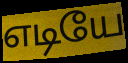
எடியே